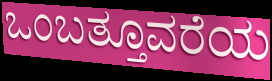
ಒಂಬತ್ತೂವರೆಯ